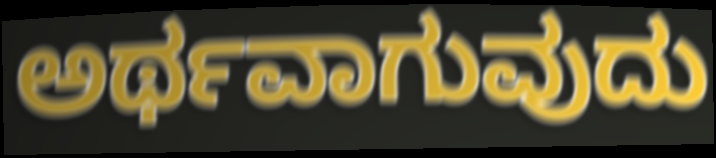
ಅರ್ಥವಾಗುವುದು